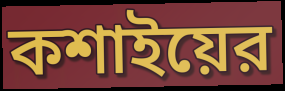
কশাইয়ের